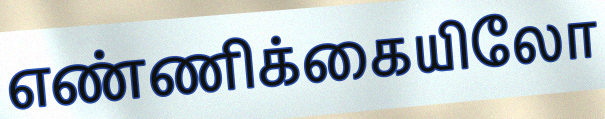
எண்ணிக்கையிலோ